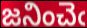
జనించెఁ